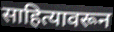
साहित्यावरून